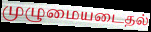
முழுமையடைதல்